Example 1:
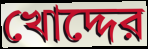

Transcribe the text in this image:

খোদ্দের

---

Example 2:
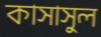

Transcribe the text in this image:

কাসাসুল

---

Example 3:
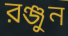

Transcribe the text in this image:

রঞ্জুন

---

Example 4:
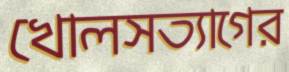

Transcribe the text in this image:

খোলসত্যাগের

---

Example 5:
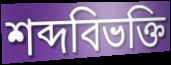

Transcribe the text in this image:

শব্দবিভক্তি